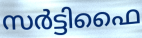
സർട്ടിഫൈ